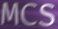
MCS